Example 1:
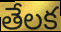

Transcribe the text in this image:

తేలక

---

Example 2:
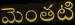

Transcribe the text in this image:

మెంతటి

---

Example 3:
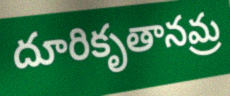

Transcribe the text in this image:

దూరికృతానమ్ర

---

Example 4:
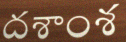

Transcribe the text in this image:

దశాంశ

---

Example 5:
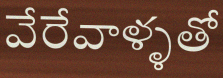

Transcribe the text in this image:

వేరేవాళ్ళతో